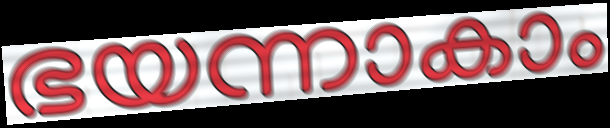
ഭയന്നാകാം